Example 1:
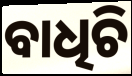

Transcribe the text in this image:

ବାଧିଚି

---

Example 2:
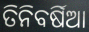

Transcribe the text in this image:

ତିନିବର୍ଷିଆ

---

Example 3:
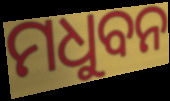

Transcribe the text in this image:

ମଧୁବନ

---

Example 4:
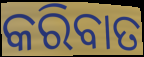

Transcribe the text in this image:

କରିବାତ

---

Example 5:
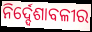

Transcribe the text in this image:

ନିର୍ଦ୍ଦେଶାବଳୀର